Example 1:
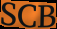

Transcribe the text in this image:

SCB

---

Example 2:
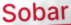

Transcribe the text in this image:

Sobar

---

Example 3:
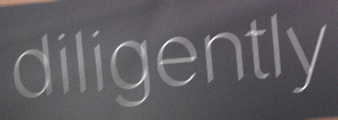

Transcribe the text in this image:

diligently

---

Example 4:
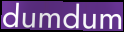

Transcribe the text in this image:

dumdum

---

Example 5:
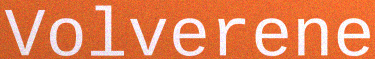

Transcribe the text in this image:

Volverene